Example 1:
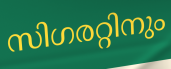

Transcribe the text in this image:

സിഗരറ്റിനും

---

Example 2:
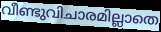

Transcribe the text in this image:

വീണ്ടുവിചാരമില്ലാതെ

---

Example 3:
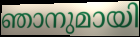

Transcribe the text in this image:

ഞാനുമായി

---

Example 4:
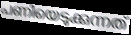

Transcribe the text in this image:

പണിയെടുക്കുന്നത്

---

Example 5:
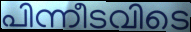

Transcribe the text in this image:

പിന്നീടവിടെ